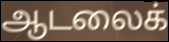
ஆடலைக்